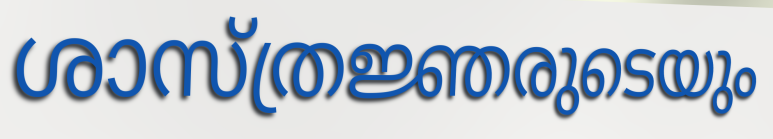
ശാസ്ത്രജ്ഞരുടെയും